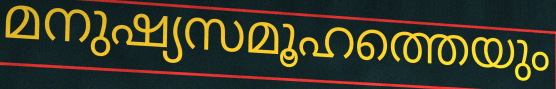
മനുഷ്യസമൂഹത്തെയും